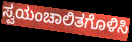
ಸ್ವಯಂಚಾಲಿತಗೊಳಿಸಿ